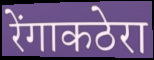
रेंगाकठेरा